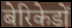
बेरिकेडों